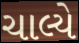
ચાલ્યે